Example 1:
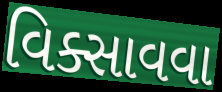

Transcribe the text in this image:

વિક્સાવવા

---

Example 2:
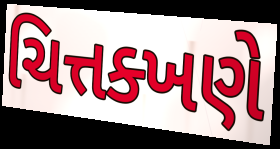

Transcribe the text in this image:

ચિત્તક્ખણે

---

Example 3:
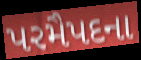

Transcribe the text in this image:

પરમૈપદના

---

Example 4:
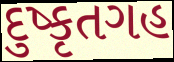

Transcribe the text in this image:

દુષ્કૃતગહ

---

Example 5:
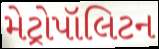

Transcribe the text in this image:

મેટ્રોપૉલિટન